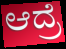
ಆದ್ರೆ